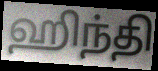
ஹிந்தி